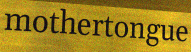
mothertongue